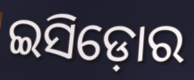
ଇସିଡ଼ୋର